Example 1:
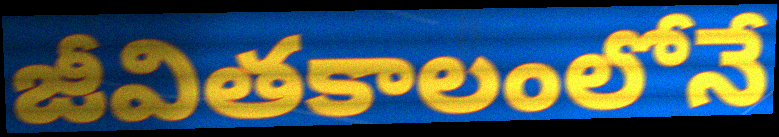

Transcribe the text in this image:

జీవితకాలంలోనే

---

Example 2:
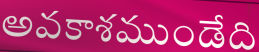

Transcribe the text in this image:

అవకాశముండేది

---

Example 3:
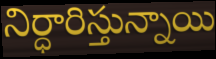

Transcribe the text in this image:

నిర్ధారిస్తున్నాయి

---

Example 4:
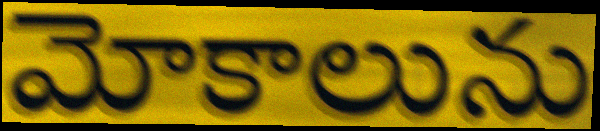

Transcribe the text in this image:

మోకాలును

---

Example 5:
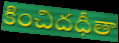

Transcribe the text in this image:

కించిదధీతా